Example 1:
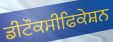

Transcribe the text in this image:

ਡੀਟੌਕਸੀਫਿਕੇਸ਼ਨ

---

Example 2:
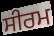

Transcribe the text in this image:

ਸੀਰਮ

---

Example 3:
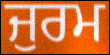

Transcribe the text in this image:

ਜੁਰਮ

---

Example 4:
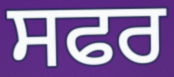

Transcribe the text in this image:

ਸਫਰ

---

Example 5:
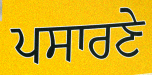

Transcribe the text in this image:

ਪਸਾਰਣੇ